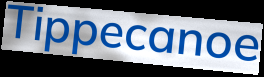
Tippecanoe